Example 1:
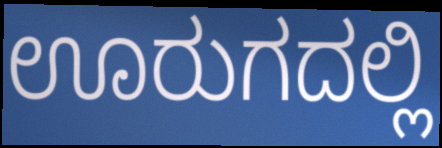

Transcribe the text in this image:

ಊರುಗದಲ್ಲಿ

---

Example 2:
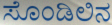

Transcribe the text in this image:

ಸೊಂಡಿಲಿನ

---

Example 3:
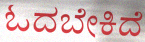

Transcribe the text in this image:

ಓದಬೇಕಿದೆ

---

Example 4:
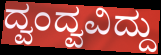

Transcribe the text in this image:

ದ್ವಂದ್ವವಿದ್ದು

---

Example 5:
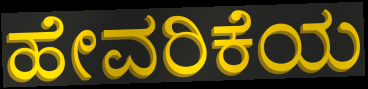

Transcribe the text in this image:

ಹೇವರಿಕೆಯ